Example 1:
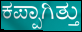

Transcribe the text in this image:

ಕಪ್ಪಾಗಿತ್ತು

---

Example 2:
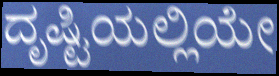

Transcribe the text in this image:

ದೃಷ್ಟಿಯಲ್ಲಿಯೇ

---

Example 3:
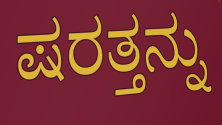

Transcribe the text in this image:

ಷರತ್ತನ್ನು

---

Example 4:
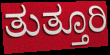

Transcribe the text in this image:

ತುತ್ತೂರಿ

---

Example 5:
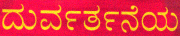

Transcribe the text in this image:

ದುರ್ವರ್ತನೆಯ